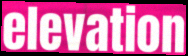
elevation